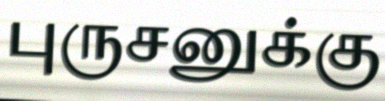
புருசனுக்கு